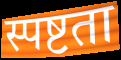
स्पष्टता